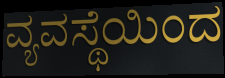
ವ್ಯವಸ್ಥೆಯಿಂದ